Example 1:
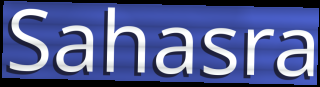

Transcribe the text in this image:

Sahasra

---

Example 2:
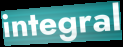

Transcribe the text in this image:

integral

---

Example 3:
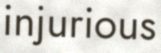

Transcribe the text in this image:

injurious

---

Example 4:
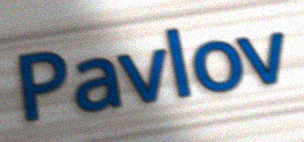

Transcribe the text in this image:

Pavlov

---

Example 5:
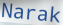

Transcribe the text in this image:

Narak